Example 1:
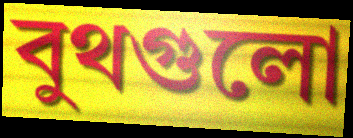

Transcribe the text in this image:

বুথগুলো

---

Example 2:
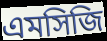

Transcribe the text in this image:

এমসিজি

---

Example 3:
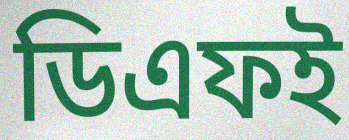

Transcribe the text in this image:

ডিএফই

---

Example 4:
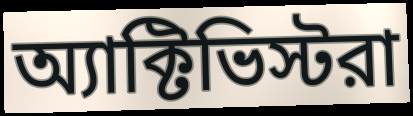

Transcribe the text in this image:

অ্যাক্টিভিস্টরা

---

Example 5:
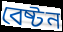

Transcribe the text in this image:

বেষ্টন